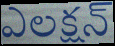
ఎలక్షన్